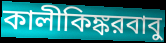
কালীকিঙ্করবাবু